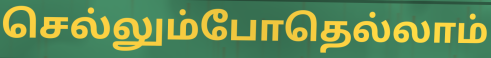
செல்லும்போதெல்லாம்